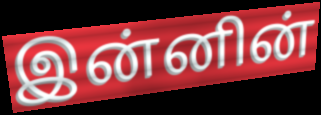
இன்னின்